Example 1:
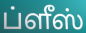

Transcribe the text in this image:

ப்ளீஸ்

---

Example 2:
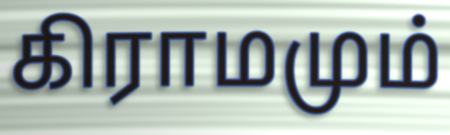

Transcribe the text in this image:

கிராமமும்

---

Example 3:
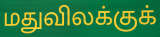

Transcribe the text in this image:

மதுவிலக்குக்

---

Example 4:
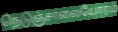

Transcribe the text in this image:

நெடுஞ்சாலையோரம்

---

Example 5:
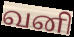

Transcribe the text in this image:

வனி